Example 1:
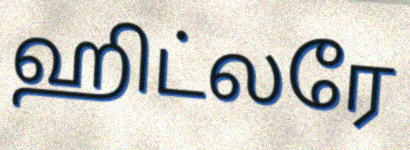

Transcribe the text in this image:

ஹிட்லரே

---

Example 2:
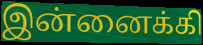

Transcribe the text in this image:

இன்னைக்கி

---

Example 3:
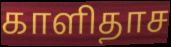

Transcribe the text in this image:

காளிதாச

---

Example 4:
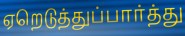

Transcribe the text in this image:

ஏறெடுத்துப்பார்த்து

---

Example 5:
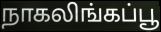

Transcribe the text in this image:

நாகலிங்கப்பூ